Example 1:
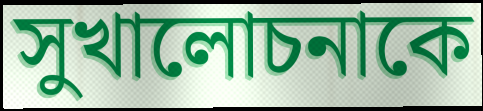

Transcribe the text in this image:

সুখালোচনাকে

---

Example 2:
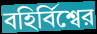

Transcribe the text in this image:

বহির্বিশ্বের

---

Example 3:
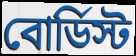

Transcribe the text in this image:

বোর্ডিস্ট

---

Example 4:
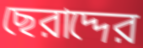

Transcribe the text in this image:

ছেরাদ্দের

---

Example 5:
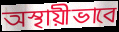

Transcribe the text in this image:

অস্থায়ীভাবে